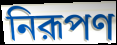
নিরূপণ